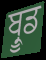
ਬ੍ਰੂਡ